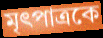
মৃৎপাত্রকে